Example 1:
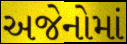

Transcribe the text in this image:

અજેનોમાં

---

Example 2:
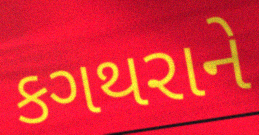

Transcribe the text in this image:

કગથરાને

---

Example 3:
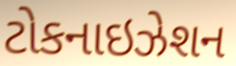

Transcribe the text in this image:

ટોકનાઇઝેશન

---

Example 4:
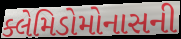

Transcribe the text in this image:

ક્લેમિડોમોનાસની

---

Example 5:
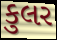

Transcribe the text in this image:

કુલર